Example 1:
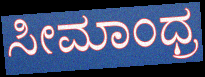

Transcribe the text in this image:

ಸೀಮಾಂಧ್ರ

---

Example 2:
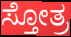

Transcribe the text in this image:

ಸ್ತೋತ್ರ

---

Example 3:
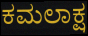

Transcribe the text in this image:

ಕಮಲಾಕ್ಷ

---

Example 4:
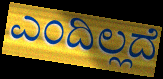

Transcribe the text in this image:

ಎಂದಿಲ್ಲದೆ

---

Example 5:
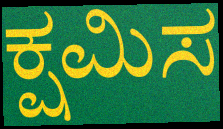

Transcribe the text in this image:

ಕ್ಷಮಿಸ